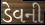
ડેવની